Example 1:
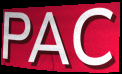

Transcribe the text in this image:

PAC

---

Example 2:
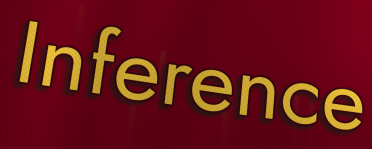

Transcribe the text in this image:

Inference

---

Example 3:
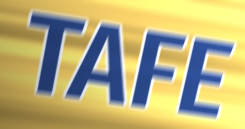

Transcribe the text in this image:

TAFE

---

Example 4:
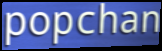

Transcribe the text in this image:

popchan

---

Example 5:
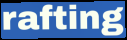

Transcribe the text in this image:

rafting